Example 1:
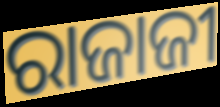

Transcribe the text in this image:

ରାଜାଜୀ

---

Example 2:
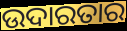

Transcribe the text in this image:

ଉଦାରତାର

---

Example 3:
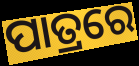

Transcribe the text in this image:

ପାତ୍ରରେ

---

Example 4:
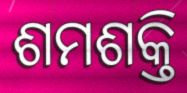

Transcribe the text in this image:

ଶମଶକ୍ତି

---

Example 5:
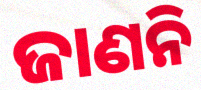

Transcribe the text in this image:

ଜାଣନି